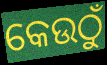
କେଉଠୁଁ